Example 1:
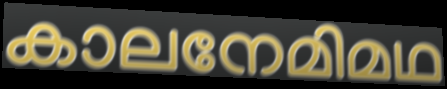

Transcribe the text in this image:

കാലനേമിമഥ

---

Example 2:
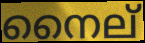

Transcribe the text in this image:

നൈല്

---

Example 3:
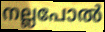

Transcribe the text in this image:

നല്ലപോൽ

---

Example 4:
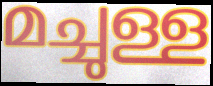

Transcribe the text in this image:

മച്ചുള്ള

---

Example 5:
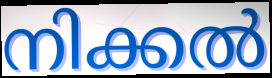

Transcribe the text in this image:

നിക്കൽ